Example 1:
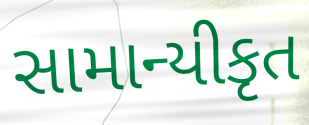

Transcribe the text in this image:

સામાન્યીકૃત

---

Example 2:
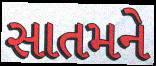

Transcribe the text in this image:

સાતમને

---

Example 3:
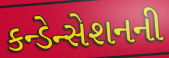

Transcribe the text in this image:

કન્ડેન્સેશનની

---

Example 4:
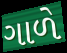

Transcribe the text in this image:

ગાળે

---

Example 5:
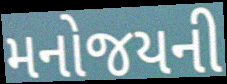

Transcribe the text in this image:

મનોજયની